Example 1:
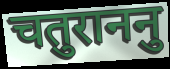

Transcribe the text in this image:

चतुराननु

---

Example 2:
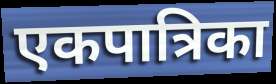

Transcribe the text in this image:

एकपात्रिका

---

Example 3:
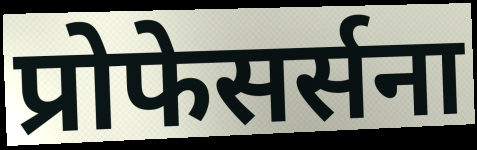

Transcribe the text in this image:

प्रोफेसर्सना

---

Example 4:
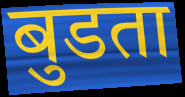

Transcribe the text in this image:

बुडता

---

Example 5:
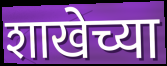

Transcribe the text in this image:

शाखेच्या